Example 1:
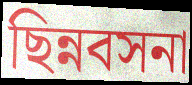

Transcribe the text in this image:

ছিন্নবসনা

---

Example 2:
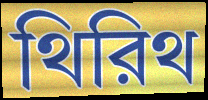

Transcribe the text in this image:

থিরিথ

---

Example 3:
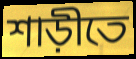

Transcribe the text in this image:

শাড়ীতে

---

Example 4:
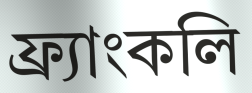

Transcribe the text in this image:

ফ্র্যাংকলি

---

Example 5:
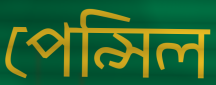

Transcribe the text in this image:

পেন্সিল